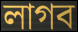
লাগব